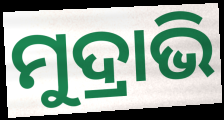
ମୁଦ୍ରାଭି